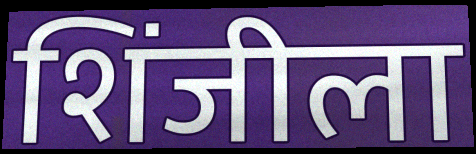
शिंजीला